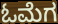
ಓಮೆಗ